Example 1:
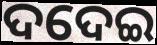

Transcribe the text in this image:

ଦଦେଇ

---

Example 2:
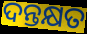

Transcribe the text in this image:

ଦନ୍ତକ୍ଷତ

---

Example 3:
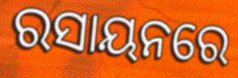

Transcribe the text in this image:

ରସାୟନରେ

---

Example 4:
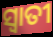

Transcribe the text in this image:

ସ୍ୱାତୀ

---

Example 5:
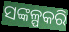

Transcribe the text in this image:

ସଙ୍କଳ୍ପକରି